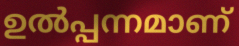
ഉൽപ്പന്നമാണ്